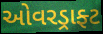
ઓવરડ્રાફ્ટ